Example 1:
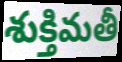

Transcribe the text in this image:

శుక్తిమతీ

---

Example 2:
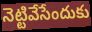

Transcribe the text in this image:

నెట్టివేసేందుకు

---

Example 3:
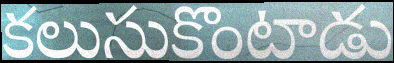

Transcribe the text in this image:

కలుసుకొంటాడు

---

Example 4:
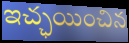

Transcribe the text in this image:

ఇచ్ఛయించిన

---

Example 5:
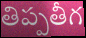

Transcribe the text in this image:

తిప్పతీగ